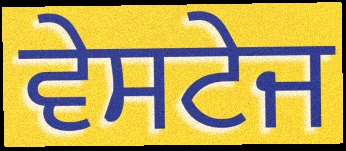
ਵੇਸਟੇਜ